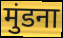
मुंडना